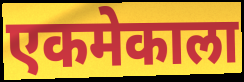
एकमेकाला